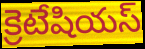
క్రెటేషియస్